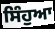
ਸਿੰਹੁਆ